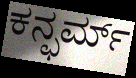
ಕನ್ಫರ್ಮ್